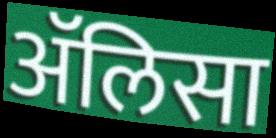
ॲलिसा